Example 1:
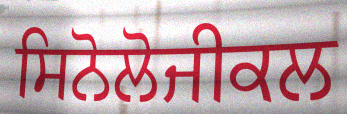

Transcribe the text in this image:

ਸਿਨੋਲੋਜੀਕਲ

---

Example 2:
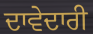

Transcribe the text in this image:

ਦਾਵੇਦਾਰੀ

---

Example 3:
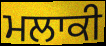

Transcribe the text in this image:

ਮਲਾਕੀ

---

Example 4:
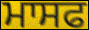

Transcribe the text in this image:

ਮਾਸਫ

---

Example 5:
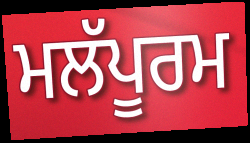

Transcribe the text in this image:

ਮਲੱਪੂਰਮ